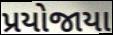
પ્રયોજાયા